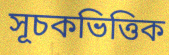
সূচকভিত্তিক